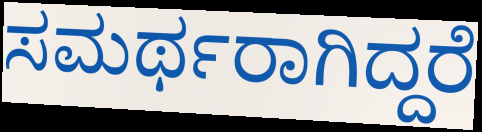
ಸಮರ್ಥರಾಗಿದ್ದರೆ